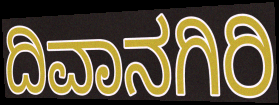
ದಿವಾನಗಿರಿ